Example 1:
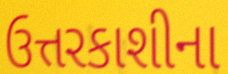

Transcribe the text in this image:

ઉત્તરકાશીના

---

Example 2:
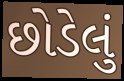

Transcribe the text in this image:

છોડેલું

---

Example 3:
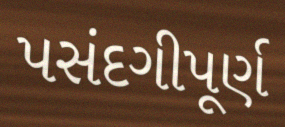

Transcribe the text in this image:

પસંદગીપૂર્ણ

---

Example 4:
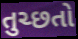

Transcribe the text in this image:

તુચ્છતો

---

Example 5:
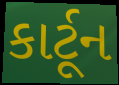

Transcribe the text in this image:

કાર્ટૂન